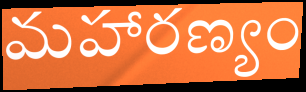
మహారణ్యం